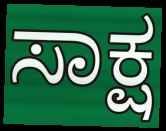
ಸಾಕ್ಷ